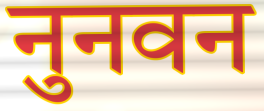
नुनवन